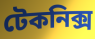
টেকনিক্স